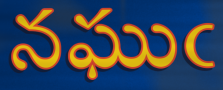
నఘుఁ